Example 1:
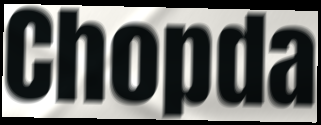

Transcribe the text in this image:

Chopda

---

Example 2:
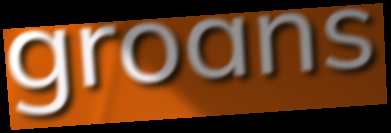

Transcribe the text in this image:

groans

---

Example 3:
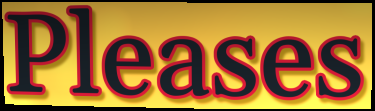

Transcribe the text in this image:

Pleases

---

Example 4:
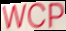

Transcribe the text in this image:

WCP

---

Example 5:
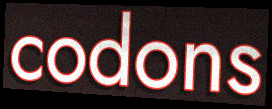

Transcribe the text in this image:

codons